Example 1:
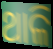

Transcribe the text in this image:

ଥାଳି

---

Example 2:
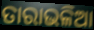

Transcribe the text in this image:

ତାରାଭଳିଆ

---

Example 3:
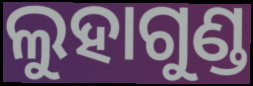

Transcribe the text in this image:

ଲୁହାଗୁଣ୍ଡ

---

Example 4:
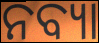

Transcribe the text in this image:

ନବ୍ୟା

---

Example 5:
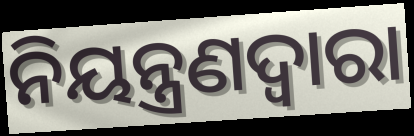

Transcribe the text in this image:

ନିୟନ୍ତ୍ରଣଦ୍ବାରା